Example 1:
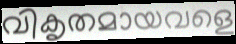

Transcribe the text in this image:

വികൃതമായവളെ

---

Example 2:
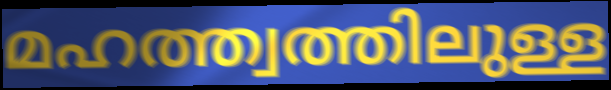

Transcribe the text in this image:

മഹത്ത്വത്തിലുള്ള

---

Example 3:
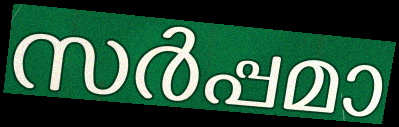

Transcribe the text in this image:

സർപ്പമാ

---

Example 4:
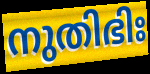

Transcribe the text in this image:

നുതിഭിഃ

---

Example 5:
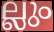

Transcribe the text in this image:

ല്ലും